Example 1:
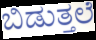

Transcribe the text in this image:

ಬಿಡುತ್ತಲೆ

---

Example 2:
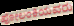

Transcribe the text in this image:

ಪೋಲಂಕಿಯವರು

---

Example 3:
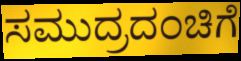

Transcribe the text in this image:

ಸಮುದ್ರದಂಚಿಗೆ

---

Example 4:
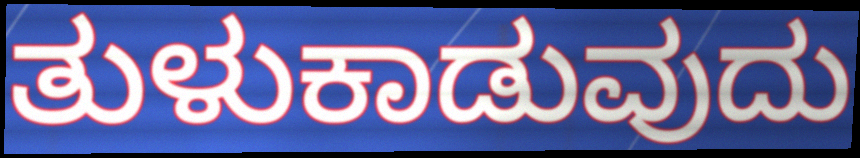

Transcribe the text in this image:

ತುಳುಕಾಡುವುದು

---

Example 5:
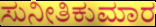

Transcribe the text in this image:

ಸುನೀತಿಕುಮಾರ